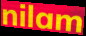
nilam